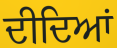
ਦੀਦਿਆਂ